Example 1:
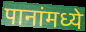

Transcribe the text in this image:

पानांमध्ये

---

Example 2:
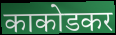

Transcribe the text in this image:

काकोडकर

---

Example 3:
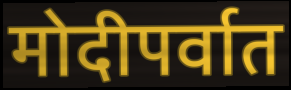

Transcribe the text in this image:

मोदीपर्वात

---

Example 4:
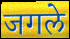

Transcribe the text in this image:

जगले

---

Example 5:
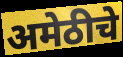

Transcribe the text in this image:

अमेठीचे